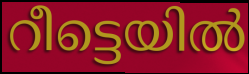
റീട്ടെയിൽ